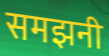
समझनी